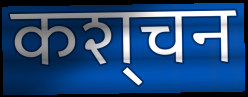
कश्चन